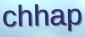
chhap